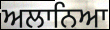
ਅਲਾਨਿਆ